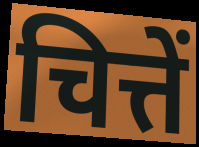
चित्तें